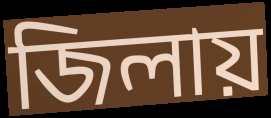
জিলায়